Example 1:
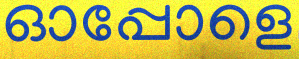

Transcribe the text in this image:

ഓപ്പോളെ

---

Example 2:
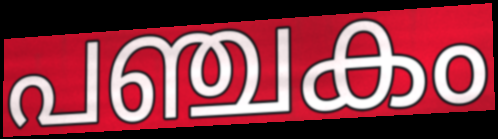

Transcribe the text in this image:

പഞ്ചകം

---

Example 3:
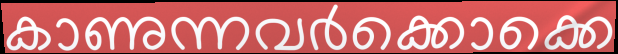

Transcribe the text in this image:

കാണുന്നവർക്കൊക്കെ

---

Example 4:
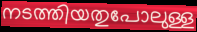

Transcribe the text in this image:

നടത്തിയതുപോലുള്ള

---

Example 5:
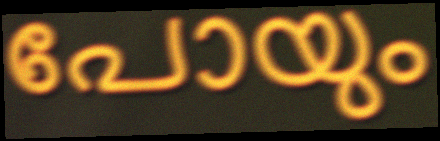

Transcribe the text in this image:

പോയും